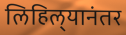
लिहिल्यानंतर